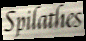
Spilathes